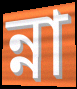
ন্না